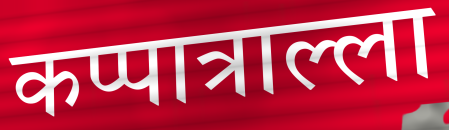
कप्पात्राल्ला